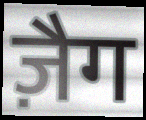
ज़ैग